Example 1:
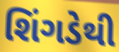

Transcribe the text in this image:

શિંગડેથી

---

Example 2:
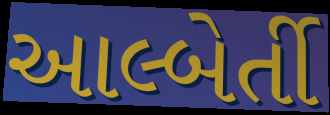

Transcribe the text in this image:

આલ્બેર્તી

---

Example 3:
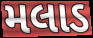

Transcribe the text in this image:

મલાડ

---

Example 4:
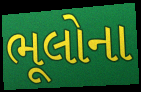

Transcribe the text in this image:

ભૂલોના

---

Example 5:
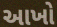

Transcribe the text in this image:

આખો